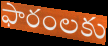
ఫారంలకు